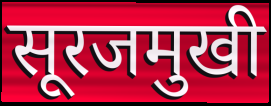
सूरजमुखी